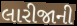
લારીજાની